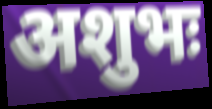
अशुभः